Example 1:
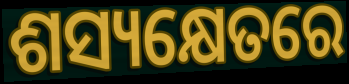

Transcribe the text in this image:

ଶସ୍ୟକ୍ଷେତରେ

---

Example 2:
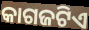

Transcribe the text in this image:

କାଗଜଟିଏ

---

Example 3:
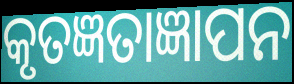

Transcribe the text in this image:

କୃତଜ୍ଞତାଜ୍ଞାପନ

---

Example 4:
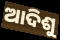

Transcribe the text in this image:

ଆଦିଶୁ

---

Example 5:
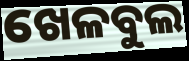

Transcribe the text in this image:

ଖେଳବୁଲ